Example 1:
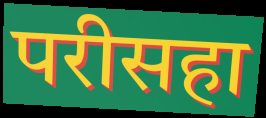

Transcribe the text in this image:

परीसहा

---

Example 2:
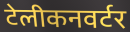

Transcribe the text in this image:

टेलीकनवर्टर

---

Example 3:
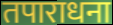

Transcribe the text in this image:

तपाराधना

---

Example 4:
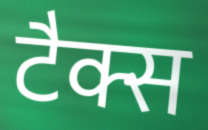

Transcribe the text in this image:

टैक्स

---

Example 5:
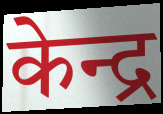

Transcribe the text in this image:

केन्‍द्र